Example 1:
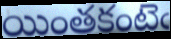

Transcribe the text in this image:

యింతకంటెఁ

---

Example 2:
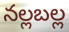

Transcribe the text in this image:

నల్లబల్ల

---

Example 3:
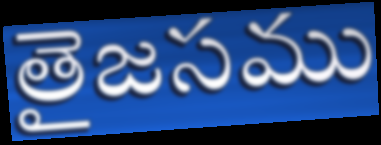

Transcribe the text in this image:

తైజసము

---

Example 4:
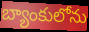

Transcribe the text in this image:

బ్యాంకులోను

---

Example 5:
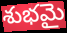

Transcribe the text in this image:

శుభమై